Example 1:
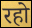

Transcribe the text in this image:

रहो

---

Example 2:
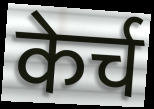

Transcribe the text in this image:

केर्च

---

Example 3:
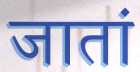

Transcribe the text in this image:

जातां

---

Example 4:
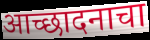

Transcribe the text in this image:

आच्छादनाचा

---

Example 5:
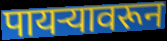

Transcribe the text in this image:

पायऱ्यावरून